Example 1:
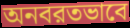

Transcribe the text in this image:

অনবরতভাবে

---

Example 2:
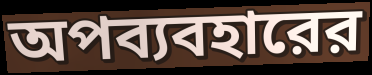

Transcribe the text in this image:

অপব্যবহারের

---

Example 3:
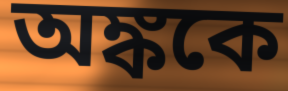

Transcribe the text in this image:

অঙ্ককে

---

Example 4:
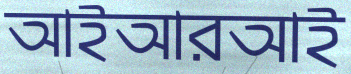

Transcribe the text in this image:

আইআরআই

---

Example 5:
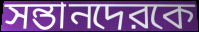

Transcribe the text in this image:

সন্তানদেরকে